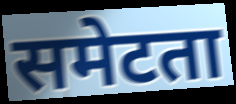
समेटता